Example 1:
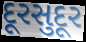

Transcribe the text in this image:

દૂરસુદૂર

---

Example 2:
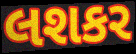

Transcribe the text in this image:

લશકર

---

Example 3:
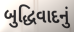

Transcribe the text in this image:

બુદ્ધિવાદનું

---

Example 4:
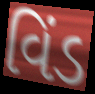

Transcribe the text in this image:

વિંડ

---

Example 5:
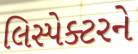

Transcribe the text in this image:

લિસ્પેક્ટરને